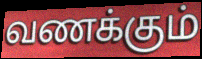
வணக்கும்